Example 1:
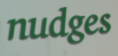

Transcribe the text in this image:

nudges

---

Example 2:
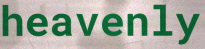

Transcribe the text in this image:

heavenly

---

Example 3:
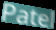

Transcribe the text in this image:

Patel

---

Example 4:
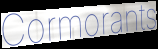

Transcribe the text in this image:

Cormorants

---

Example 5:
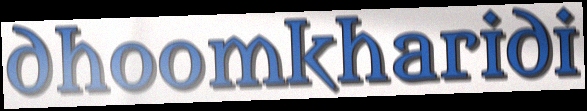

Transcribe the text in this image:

dhoomkharidi